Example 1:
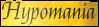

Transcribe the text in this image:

Hypomania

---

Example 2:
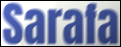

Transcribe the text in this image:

Sarafa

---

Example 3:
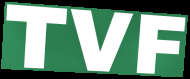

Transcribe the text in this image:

TVF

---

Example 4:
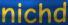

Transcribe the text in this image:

nichd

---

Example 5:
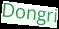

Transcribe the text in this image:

Dongri